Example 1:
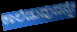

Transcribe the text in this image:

ಕಾಲಿಡುವುದನ್ನೇ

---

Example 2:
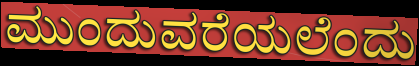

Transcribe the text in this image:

ಮುಂದುವರೆಯಲೆಂದು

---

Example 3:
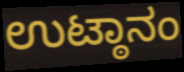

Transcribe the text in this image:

ಉಟ್ಠಾನಂ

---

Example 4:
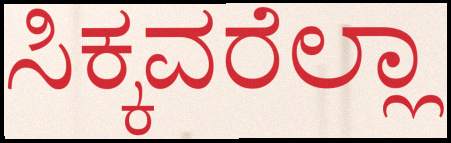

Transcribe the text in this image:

ಸಿಕ್ಕವರೆಲ್ಲಾ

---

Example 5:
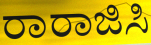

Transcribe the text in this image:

ರಾರಾಜಿಸಿ